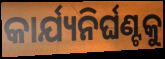
କାର୍ଯ୍ୟନିର୍ଘଣ୍ଟକୁ